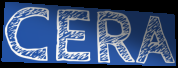
CERA